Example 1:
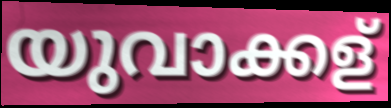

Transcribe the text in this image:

യുവാക്കള്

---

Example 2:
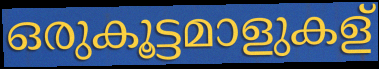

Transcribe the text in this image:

ഒരുകൂട്ടമാളുകള്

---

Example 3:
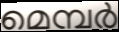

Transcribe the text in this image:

മെമ്പർ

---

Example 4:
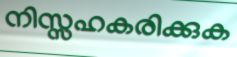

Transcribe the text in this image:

നിസ്സഹകരിക്കുക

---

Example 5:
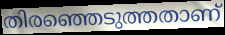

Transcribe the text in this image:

തിരഞ്ഞെടുത്തതാണ്